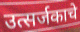
उत्सर्जकाचे